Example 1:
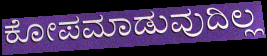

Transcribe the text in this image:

ಕೋಪಮಾಡುವುದಿಲ್ಲ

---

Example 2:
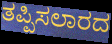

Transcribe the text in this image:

ತಪ್ಪಿಸಲಾರದ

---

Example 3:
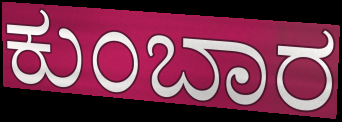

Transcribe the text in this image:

ಕುಂಬಾರ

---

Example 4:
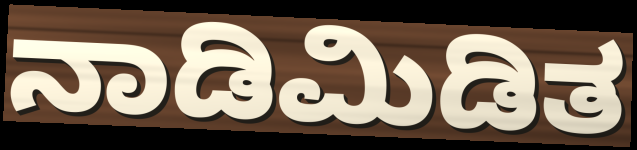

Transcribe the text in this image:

ನಾಡಿಮಿಡಿತ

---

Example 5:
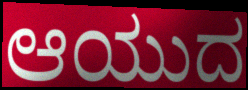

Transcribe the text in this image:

ಆಯುದ